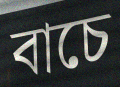
বাচে